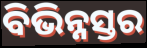
ବିଭିନ୍ନସ୍ତର